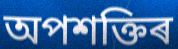
অপশক্তিৰ